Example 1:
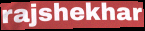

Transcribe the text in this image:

rajshekhar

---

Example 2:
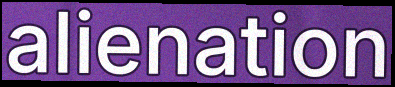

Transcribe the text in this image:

alienation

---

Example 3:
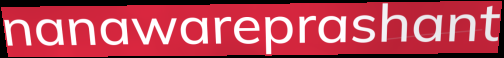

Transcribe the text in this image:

nanawareprashant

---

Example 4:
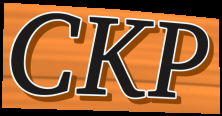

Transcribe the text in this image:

CKP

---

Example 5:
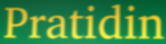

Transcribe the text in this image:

Pratidin